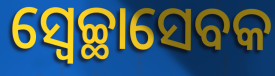
ସ୍ୱେଚ୍ଛାସେବକ